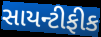
સાયન્ટીફીક